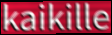
kaikille